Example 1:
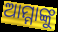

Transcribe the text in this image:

ଆମ୍ମାଙ୍କୁ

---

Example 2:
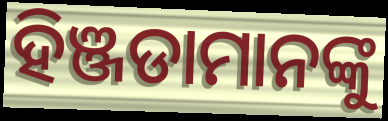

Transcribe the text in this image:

ହିଞ୍ଜଡାମାନଙ୍କୁ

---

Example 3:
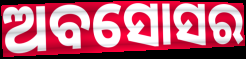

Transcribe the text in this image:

ଅବସୋସର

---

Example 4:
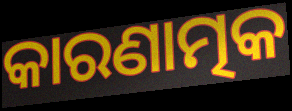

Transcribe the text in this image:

କାରଣାତ୍ମକ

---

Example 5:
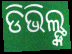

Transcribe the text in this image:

ଡିଭିଲ୍ଙ୍କ